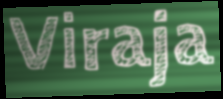
Viraja